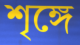
শৃঙ্গে